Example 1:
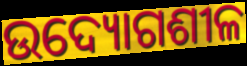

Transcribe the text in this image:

ଉଦ୍ୟୋଗଶୀଳ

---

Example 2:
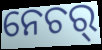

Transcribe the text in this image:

ନେଚର୍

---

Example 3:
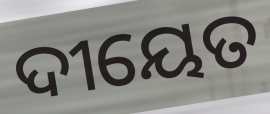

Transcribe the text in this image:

ଦୀୟେତ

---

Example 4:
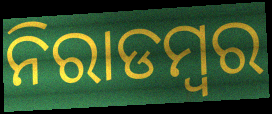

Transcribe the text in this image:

ନିରାଡମ୍ବର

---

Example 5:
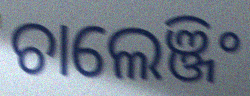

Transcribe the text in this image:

ଚାଲେଞ୍ଜିଂ